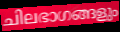
ചിലഭാഗങ്ങളും